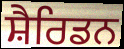
ਸ਼ੈਰਿਡਨ